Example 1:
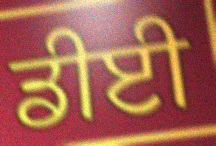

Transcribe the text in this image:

ਡੀਈ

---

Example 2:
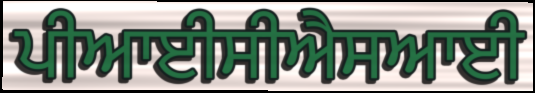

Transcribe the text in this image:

ਪੀਆਈਸੀਐਸਆਈ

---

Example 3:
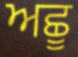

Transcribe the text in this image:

ਅਛੂ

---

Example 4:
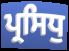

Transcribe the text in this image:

ਪ੍ਰਸਿਧੁ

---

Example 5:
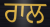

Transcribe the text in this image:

ਰਾਲ